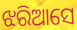
ଝରିଆସେ